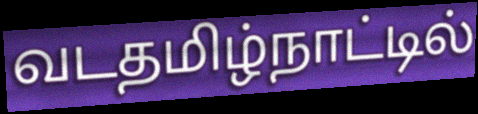
வடதமிழ்நாட்டில்